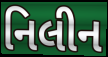
નિલીન